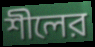
শীলের